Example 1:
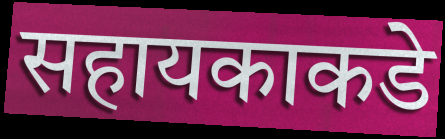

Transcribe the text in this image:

सहायकाकडे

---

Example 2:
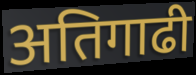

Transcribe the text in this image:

अतिगाढी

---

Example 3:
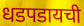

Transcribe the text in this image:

धडपडायची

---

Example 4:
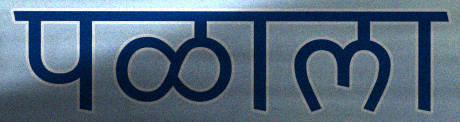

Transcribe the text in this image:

पळाला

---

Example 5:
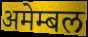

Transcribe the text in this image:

अमेम्बल